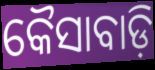
କୈସାବାଡ଼ି